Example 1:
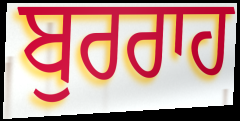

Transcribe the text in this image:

ਬੁਰਰਾਹ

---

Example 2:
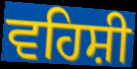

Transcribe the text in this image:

ਵਹਿਸ਼ੀ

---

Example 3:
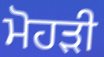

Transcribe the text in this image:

ਮੋਹੜੀ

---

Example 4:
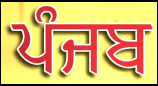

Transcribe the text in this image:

ਪੰਜਬ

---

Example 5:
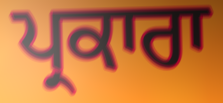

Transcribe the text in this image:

ਪ੍ਰਕਾਰਾ